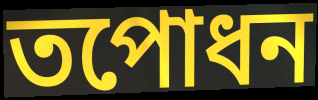
তপোধন